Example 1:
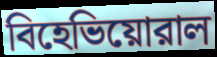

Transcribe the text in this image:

বিহেভিয়োরাল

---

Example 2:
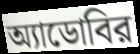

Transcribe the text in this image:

অ্যাডোবির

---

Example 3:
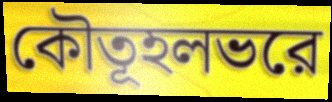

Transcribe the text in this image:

কৌতূহলভরে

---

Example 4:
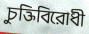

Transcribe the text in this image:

চুক্তিবিরোধী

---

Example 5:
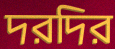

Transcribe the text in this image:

দরদির